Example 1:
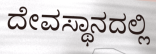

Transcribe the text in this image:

ದೇವಸ್ಥಾನದಲ್ಲಿ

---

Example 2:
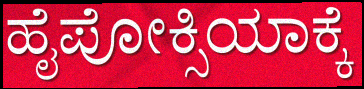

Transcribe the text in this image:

ಹೈಪೋಕ್ಸಿಯಾಕ್ಕೆ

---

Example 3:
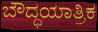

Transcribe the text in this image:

ಬೌದ್ಧಯಾತ್ರಿಕ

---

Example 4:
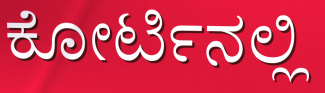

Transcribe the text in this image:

ಕೋರ್ಟಿನಲ್ಲಿ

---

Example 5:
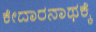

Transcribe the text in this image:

ಕೇದಾರನಾಥಕ್ಕೆ